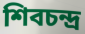
শিবচন্দ্র